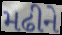
મઢીને